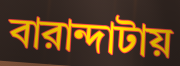
বারান্দাটায়